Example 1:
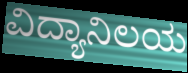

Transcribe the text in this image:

ವಿದ್ಯಾನಿಲಯ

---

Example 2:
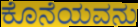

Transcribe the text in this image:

ಕೊನೆಯವನು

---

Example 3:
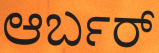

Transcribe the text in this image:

ಆರ್ಬರ್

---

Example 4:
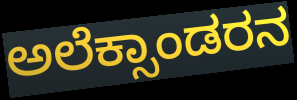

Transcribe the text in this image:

ಅಲೆಕ್ಸಾಂಡರನ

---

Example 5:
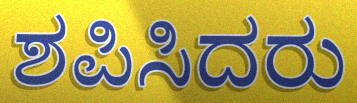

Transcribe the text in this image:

ಶಪಿಸಿದರು